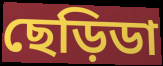
ছেড়িডা